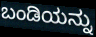
ಬಂಡಿಯನ್ನು